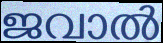
ജവാൽ